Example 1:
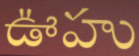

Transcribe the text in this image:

ఊహు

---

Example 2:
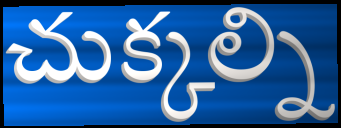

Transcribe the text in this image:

చుక్కల్ని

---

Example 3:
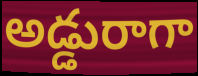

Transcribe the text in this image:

అడ్డురాగా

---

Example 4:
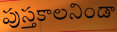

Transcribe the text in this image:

పుస్తకాలనిండా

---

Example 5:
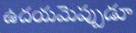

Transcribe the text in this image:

ఉదయమెప్పుడూ